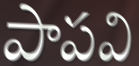
పాపవి